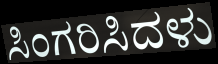
ಸಿಂಗರಿಸಿದಳು